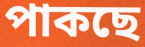
পাকছে